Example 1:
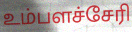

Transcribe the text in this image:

உம்பளச்சேரி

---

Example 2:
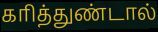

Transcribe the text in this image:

கரித்துண்டால்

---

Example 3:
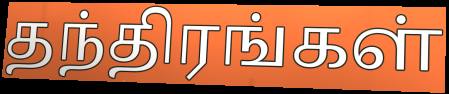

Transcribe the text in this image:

தந்திரங்கள்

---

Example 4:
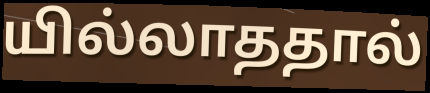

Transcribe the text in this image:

யில்லாததால்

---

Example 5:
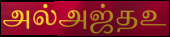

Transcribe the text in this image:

அல்அஜ்தஉ